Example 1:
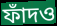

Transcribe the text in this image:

ফাঁদও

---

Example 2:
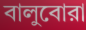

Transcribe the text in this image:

বালুবোরা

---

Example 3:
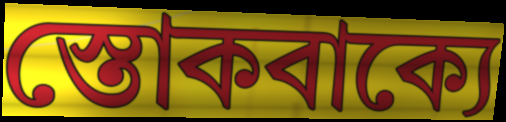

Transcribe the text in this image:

স্তোকবাক্যে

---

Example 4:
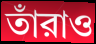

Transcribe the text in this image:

তাঁরাও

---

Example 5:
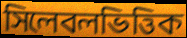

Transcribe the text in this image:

সিলেবলভিত্তিক